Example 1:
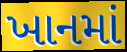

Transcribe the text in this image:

ખાનમાં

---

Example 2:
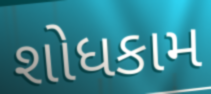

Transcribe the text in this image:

શોધકામ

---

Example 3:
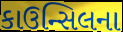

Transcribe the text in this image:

કાઉન્સિલના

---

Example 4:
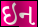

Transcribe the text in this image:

ઇન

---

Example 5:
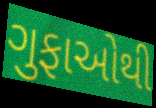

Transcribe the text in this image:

ગુફાઓથી